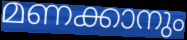
മണക്കാനും